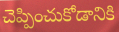
చెప్పించుకోడానికి